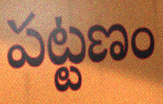
పట్టణం